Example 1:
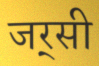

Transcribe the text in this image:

जर्सी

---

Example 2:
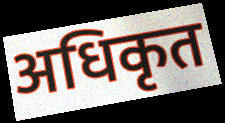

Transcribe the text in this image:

अधिकृत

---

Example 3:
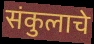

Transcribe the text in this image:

संकुलाचे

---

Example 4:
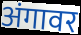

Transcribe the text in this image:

अंगावर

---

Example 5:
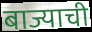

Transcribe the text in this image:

बाज्याची